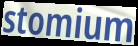
stomium